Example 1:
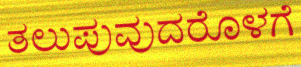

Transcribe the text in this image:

ತಲುಪುವುದರೊಳಗೆ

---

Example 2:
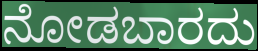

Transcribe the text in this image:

ನೋಡಬಾರದು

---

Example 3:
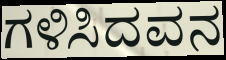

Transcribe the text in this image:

ಗಳಿಸಿದವನ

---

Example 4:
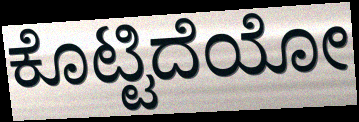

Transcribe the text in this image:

ಕೊಟ್ಟಿದೆಯೋ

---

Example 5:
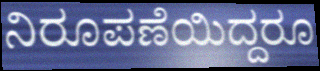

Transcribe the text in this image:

ನಿರೂಪಣೆಯಿದ್ದರೂ